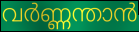
വർണ്ണന്താൻ